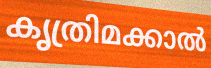
കൃത്രിമക്കാൽ